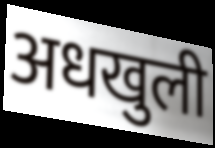
अधखुली